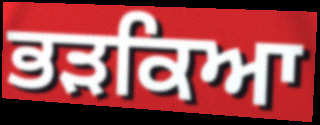
ਭੜਕਿਆ